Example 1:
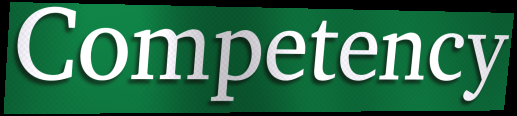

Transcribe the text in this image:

Competency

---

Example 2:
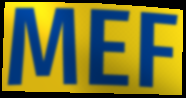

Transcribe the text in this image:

MEF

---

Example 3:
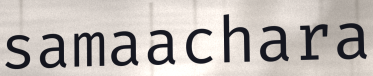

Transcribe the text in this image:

samaachara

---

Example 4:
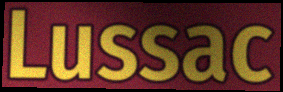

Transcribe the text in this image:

Lussac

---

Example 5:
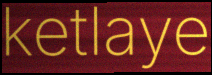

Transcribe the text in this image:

ketlaye